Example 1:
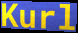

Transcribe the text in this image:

Kurl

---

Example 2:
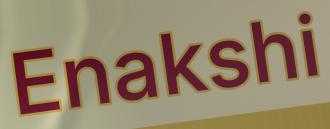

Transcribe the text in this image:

Enakshi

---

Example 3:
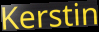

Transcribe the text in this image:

Kerstin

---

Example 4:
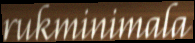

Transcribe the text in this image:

rukminimala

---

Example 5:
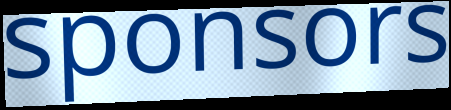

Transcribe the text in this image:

sponsors